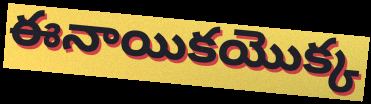
ఈనాయికయొక్క